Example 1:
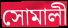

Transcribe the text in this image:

সোমালী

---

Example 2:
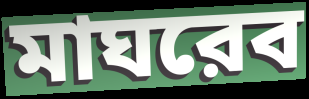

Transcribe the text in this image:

মাঘরেব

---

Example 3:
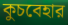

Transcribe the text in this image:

কুচবেহার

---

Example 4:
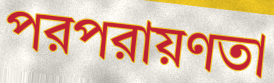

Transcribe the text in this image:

পরপরায়ণতা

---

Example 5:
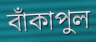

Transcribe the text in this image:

বাঁকাপুল